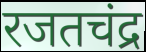
रजतचंद्र